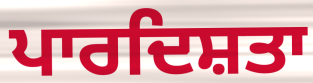
ਪਾਰਦਿਸ਼ਤਾ